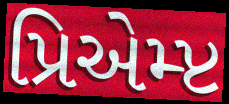
પ્રિએમ્પ્ટ